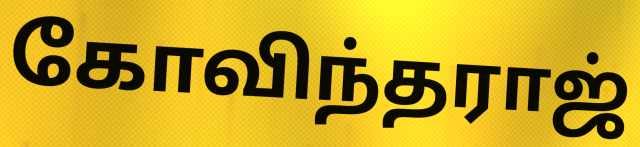
கோவிந்தராஜ்